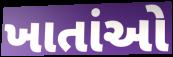
ખાતાંઓ